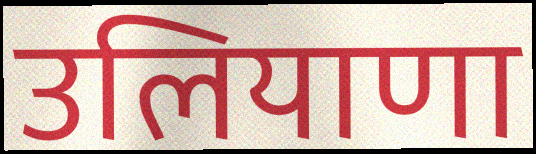
उलियाणा